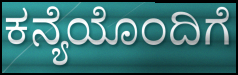
ಕನ್ಯೆಯೊಂದಿಗೆ